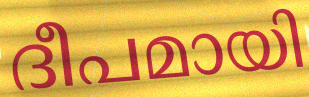
ദീപമായി